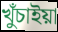
খুঁচাইয়া